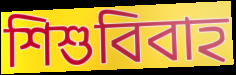
শিশুবিবাহ